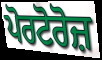
ਪੋਰਟੋਰੋਜ਼